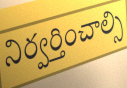
నిర్వర్తించాల్సి